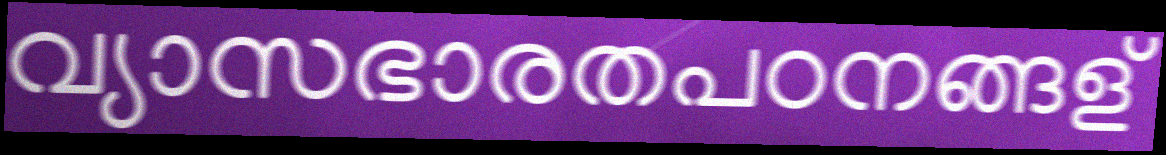
വ്യാസഭാരതപഠനങ്ങള്